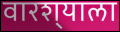
वारश्याला